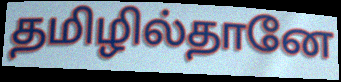
தமிழில்தானே